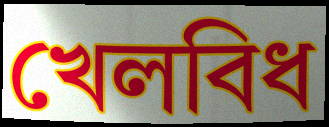
খেলবিধ